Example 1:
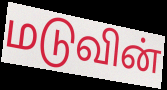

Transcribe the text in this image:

மடுவின்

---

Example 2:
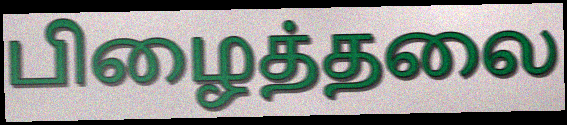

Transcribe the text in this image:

பிழைத்தலை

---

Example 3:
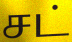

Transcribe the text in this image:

சட்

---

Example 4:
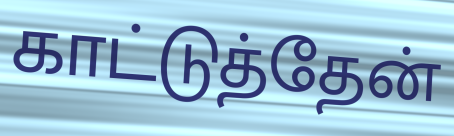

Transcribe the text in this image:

காட்டுத்தேன்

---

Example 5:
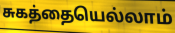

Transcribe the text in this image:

சுகத்தையெல்லாம்